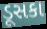
ડૂસકા